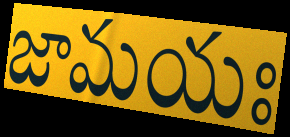
జామయః